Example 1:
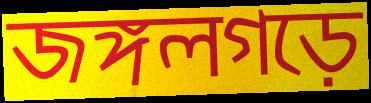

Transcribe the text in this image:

জঙ্গলগড়ে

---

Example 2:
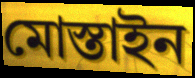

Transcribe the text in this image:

মোস্তাইন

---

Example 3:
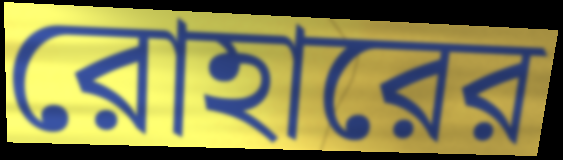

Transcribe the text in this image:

রোহারের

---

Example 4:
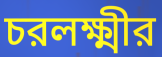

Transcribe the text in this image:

চরলক্ষ্মীর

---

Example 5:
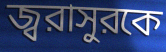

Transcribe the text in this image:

জ্বরাসুরকে